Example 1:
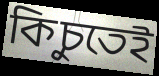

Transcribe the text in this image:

কিচুতেই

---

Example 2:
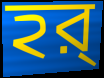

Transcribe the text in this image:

হর্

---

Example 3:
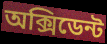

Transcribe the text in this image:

অক্সিডেন্ট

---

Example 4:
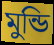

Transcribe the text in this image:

মুন্ডি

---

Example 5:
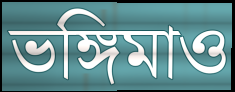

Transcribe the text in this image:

ভঙ্গিমাও